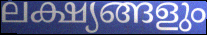
ലക്ഷ്യങ്ങളും